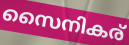
സൈനികര്